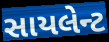
સાયલેન્ટ